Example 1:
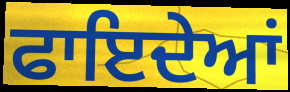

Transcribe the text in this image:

ਫਾਇਦੇਆਂ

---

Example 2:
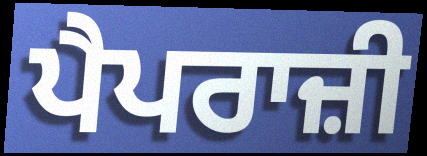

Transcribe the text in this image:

ਪੈਪਰਾਜ਼ੀ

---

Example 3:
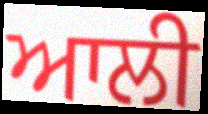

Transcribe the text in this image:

ਆਲੀ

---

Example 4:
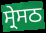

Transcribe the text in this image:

ਸ੍ਰੇਸਠ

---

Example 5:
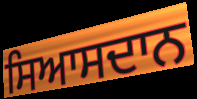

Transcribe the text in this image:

ਸਿਆਸਦਾਨ